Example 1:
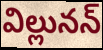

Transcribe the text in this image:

విల్లునన్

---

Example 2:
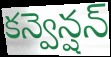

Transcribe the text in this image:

కన్వెన్షన్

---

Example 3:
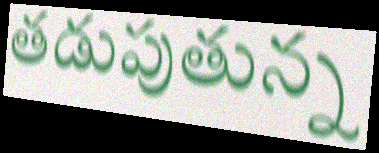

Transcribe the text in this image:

తడుపుతున్న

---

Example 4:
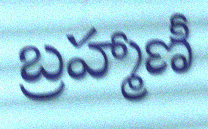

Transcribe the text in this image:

బ్రహ్మాణీ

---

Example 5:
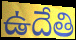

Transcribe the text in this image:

ఉదేతి